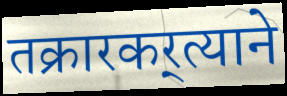
तक्रारकर्त्याने